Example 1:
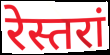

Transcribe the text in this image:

रेस्तरां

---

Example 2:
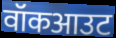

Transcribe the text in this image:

वॉकआउट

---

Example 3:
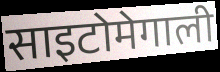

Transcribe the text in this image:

साइटोमेगाली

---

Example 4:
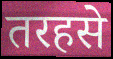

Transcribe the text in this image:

तरहसे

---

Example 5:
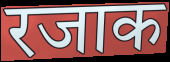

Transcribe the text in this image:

रजाक